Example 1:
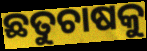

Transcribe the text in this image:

ଛତୁଚାଷକୁ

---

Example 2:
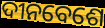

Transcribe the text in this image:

ଦୀନବେଶେ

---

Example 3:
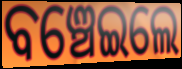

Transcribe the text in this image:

ବଞ୍ଚେଇଲେ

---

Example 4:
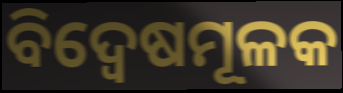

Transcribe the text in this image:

ବିଦ୍ୱେଷମୂଳକ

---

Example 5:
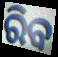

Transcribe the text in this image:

ରିବ